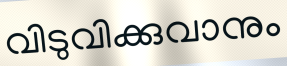
വിടുവിക്കുവാനും